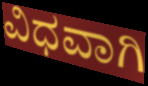
ವಿಧವಾಗಿ